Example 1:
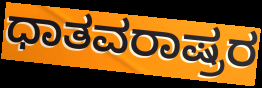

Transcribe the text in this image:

ಧಾತವರಾಷ್ರರ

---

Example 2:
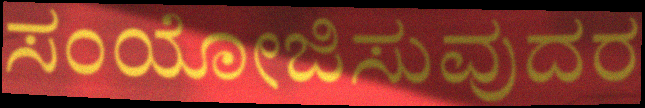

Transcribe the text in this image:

ಸಂಯೋಜಿಸುವುದರ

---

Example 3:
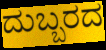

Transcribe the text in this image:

ದುಬ್ಬರದ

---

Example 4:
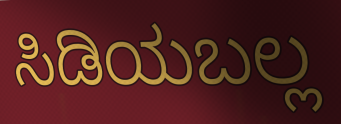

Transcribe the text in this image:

ಸಿಡಿಯಬಲ್ಲ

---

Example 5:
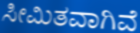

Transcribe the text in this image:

ಸೀಮಿತವಾಗಿವೆ